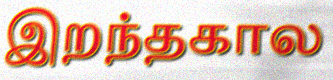
இறந்தகால